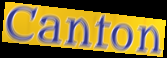
Canton